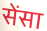
सेंसा